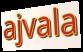
ajvala